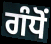
ਗੰਧੋਂ